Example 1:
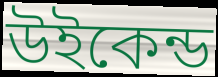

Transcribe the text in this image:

উইকেন্ড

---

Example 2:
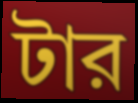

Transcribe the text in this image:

টার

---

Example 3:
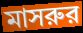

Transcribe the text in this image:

মাসরুর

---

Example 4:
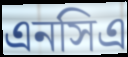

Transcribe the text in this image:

এনসিএ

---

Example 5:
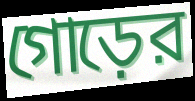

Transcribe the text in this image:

গোড়ের